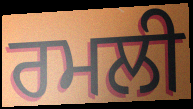
ਰਮਲੀ